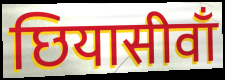
छियासीवाँ